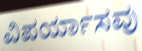
ವಿಪರ್ಯಾಸವು